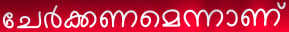
ചേർക്കണമെന്നാണ്